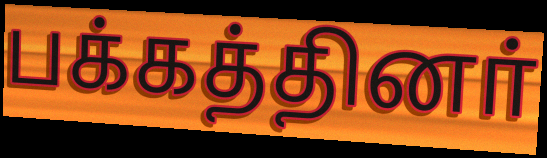
பக்கத்தினர்